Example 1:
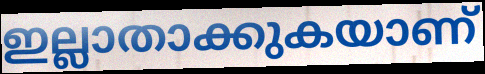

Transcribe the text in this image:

ഇല്ലാതാക്കുകയാണ്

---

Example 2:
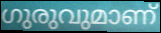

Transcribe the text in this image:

ഗുരുവുമാണ്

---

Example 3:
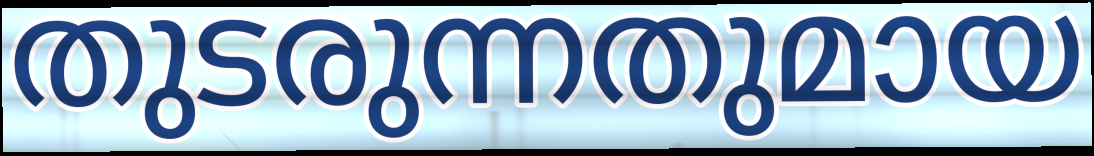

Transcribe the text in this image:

തുടരുന്നതുമായ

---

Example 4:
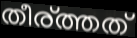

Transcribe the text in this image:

തീര്ത്തത്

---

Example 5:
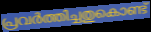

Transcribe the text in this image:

പ്രവർത്തിച്ചതുകൊണ്ട്